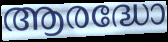
ആരദ്ധോ